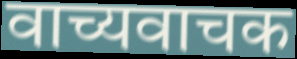
वाच्यवाचक